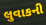
લુવાકની